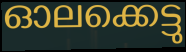
ഓലക്കെട്ടു